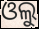
ଓଲୁ